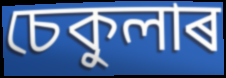
চেকুলাৰ